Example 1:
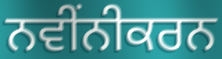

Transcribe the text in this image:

ਨਵੀਂਨੀਕਰਨ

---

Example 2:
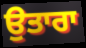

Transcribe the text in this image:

ਉਤਾਰਾ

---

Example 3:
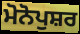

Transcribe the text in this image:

ਮੋਨੋਪੁਸ਼ਰ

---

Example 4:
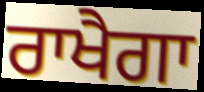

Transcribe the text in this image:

ਰਾਖੈਗਾ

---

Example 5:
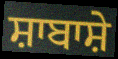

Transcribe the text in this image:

ਸ਼ਾਬਾਸ਼ੇ